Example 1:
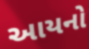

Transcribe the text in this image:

આયનો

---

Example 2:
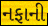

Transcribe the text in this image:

નફાની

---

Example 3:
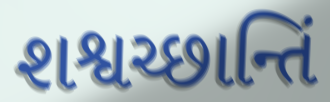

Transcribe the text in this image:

શશ્વચ્છાન્તિં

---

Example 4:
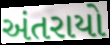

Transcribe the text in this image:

અંતરાયો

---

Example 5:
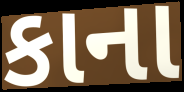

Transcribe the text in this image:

કાના